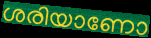
ശരിയാണോ